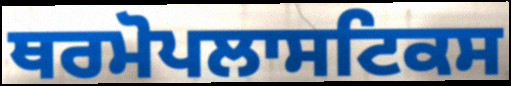
ਥਰਮੋਪਲਾਸਟਿਕਸ